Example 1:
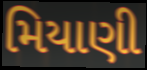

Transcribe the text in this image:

મિયાણી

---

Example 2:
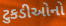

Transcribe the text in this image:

ટુકડીઓનો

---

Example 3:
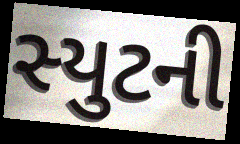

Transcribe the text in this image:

સ્યુટની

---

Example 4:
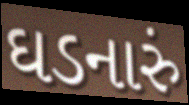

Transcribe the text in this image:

ઘડનારું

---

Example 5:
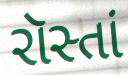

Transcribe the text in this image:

રૉસ્તાં